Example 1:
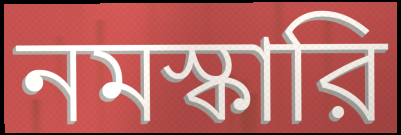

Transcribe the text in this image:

নমস্কারি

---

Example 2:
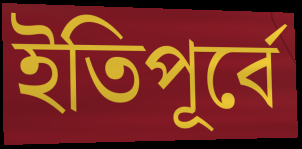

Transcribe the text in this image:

ইতিপূর্বে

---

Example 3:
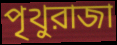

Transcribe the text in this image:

পৃথুরাজা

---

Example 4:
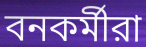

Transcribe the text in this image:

বনকর্মীরা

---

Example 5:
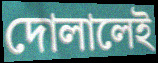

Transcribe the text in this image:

দোলালেই